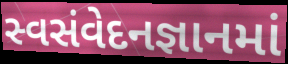
સ્વસંવેદનજ્ઞાનમાં